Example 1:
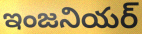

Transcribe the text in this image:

ఇంజనియర్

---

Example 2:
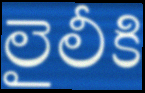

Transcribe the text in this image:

లైలీకి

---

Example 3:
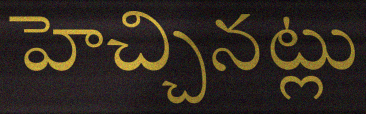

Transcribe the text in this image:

హెచ్చినట్లు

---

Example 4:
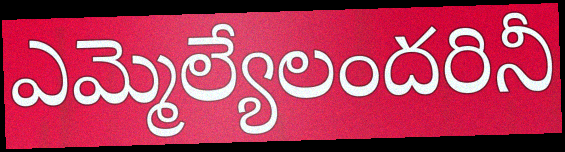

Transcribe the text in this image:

ఎమ్మెల్యేలందరినీ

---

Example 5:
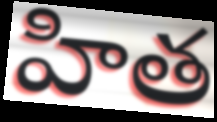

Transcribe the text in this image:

హిత